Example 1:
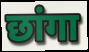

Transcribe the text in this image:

छांगा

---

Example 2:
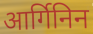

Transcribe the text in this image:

आर्गिनिन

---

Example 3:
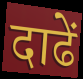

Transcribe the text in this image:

दाढें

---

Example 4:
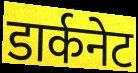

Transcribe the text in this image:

डार्कनेट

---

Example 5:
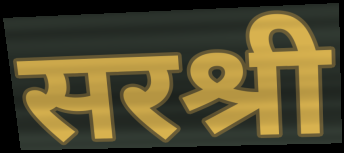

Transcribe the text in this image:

सरश्री